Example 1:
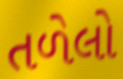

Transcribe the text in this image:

તળેલો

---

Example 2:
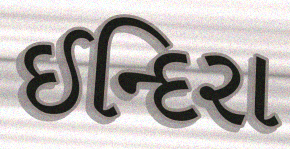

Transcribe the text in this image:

ઈન્દિરા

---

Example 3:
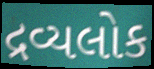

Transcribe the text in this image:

દ્રવ્યલોક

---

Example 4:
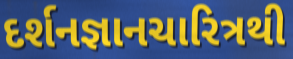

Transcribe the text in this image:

દર્શનજ્ઞાનચારિત્રથી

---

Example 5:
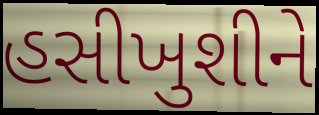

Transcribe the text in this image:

હસીખુશીને